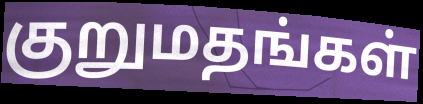
குறுமதங்கள்